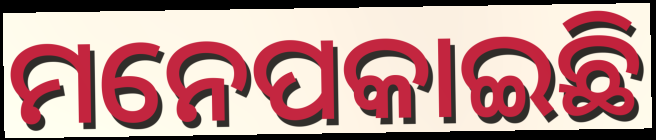
ମନେପକାଇଛି